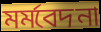
মর্মবেদনা